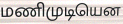
மணிமுடியென